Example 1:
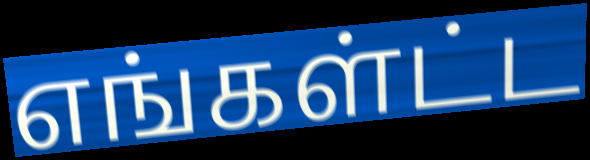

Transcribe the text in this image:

எங்கள்ட்ட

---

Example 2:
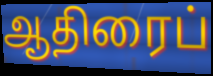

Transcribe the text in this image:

ஆதிரைப்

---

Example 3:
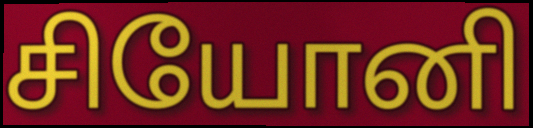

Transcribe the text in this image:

சியோனி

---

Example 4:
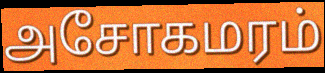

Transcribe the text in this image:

அசோகமரம்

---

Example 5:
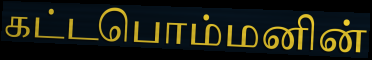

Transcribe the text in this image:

கட்டபொம்மனின்